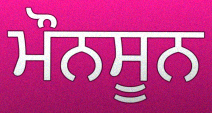
ਮੌਨਸੂਨ